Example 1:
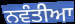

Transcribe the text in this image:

ਨਵੰਤੀਆ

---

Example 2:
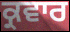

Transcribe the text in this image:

ਕ੍ਰਵਾਰ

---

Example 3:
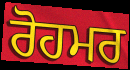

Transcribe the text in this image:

ਰੋਹਮਰ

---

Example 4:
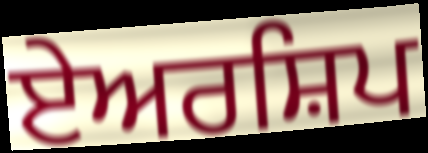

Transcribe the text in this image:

ਏਅਰਸ਼ਿਪ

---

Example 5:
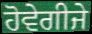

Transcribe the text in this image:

ਹੋਵੇਗੀਜੇ